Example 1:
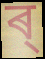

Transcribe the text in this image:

ৰ্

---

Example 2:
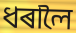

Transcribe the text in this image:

ধৰালৈ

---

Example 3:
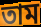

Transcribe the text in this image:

তাম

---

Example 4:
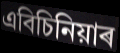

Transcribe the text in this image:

এবিচিনিয়াৰ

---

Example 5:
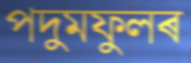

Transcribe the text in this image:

পদুমফুলৰ